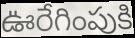
ఊరేగింపుకి